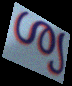
ശ്യ